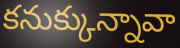
కనుక్కున్నావా